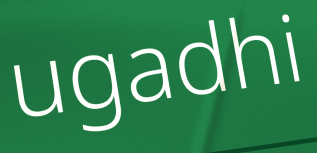
ugadhi